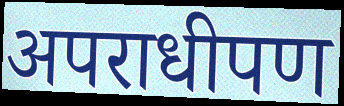
अपराधीपण